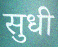
सुधी